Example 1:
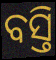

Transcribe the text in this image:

ବସ୍ତି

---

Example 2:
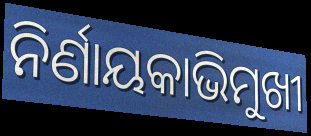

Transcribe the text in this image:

ନିର୍ଣାୟକାଭିମୁଖୀ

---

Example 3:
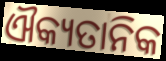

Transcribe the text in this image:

ଐକ୍ୟତାନିକ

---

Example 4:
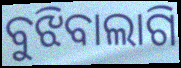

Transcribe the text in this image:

ବୁଝିବାଲାଗି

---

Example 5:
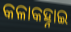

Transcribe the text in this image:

କଳାକହ୍ନାଇ